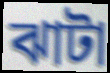
ঝাটা